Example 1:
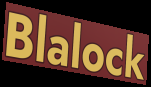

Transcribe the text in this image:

Blalock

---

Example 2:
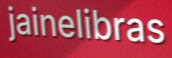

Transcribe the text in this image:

jainelibras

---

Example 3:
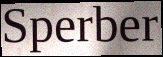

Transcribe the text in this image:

Sperber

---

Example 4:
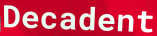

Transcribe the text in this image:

Decadent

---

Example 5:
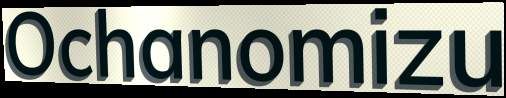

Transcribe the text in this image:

Ochanomizu